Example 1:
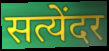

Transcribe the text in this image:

सत्येंदर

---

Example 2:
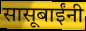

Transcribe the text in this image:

सासूबाईंनी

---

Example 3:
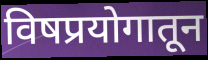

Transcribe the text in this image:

विषप्रयोगातून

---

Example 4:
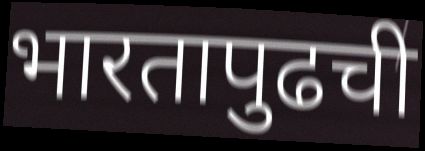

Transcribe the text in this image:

भारतापुढची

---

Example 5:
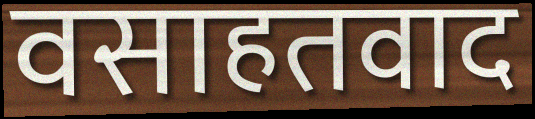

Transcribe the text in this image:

वसाहतवाद